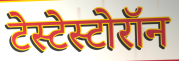
टेस्टेस्टोरॉन